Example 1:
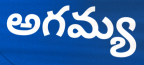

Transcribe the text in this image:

అగమ్య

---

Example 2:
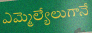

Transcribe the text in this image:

ఎమ్మెల్యేలుగానే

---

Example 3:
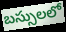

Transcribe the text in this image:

బస్సులలో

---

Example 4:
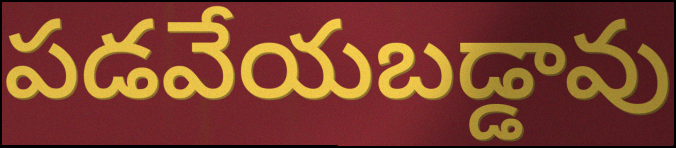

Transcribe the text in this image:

పడవేయబడ్డావు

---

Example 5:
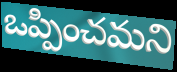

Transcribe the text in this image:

ఒప్పించమని